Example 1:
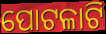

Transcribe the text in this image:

ପୋଟଳାଟି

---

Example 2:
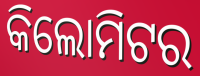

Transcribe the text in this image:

କିଲୋମିଟର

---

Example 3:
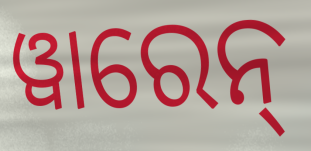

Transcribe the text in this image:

ୱାରେନ୍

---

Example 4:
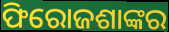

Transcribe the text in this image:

ଫିରୋଜଶାଙ୍କର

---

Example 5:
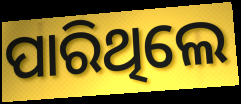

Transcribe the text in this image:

ପାରିଥିଲେ